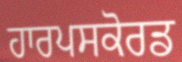
ਹਾਰਪਸਕੋਰਡ